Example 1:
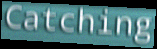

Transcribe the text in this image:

Catching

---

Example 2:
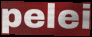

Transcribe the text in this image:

pelei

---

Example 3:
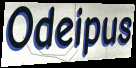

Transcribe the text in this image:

Odeipus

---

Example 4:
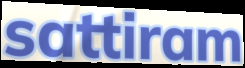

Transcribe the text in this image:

sattiram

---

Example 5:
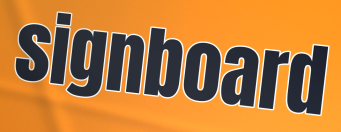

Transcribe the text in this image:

signboard